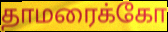
தாமரைக்கோ